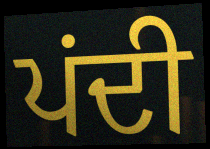
ਪਂਦੀ